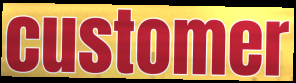
customer